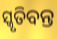
ସ୍କୃତିବନ୍ତ